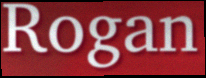
Rogan